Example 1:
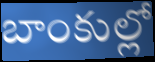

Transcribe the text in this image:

బాంకుల్లో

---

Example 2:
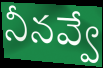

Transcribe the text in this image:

నీనవ్వే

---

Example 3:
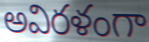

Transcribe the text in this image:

అవిరళంగా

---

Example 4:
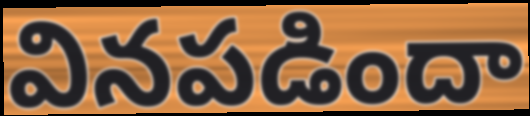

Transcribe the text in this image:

వినపడిందా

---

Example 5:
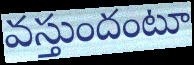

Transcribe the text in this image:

వస్తుందంటూ